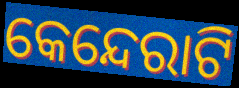
କେନ୍ଦେରାଟି